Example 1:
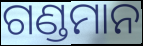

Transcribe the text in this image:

ଗଣ୍ଡମାନ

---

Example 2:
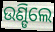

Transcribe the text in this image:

ଉଣ୍ଡିଲେ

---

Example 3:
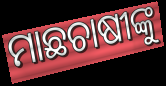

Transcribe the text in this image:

ମାଛଚାଷୀଙ୍କୁ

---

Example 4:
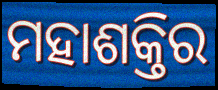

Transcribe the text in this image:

ମହାଶକ୍ତିର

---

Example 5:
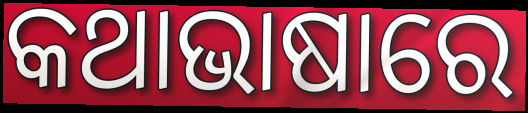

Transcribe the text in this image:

କଥାଭାଷାରେ